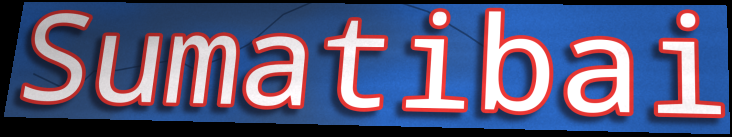
Sumatibai